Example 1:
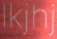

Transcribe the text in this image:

lkjhj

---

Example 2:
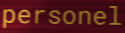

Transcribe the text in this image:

personel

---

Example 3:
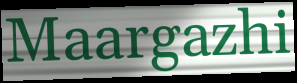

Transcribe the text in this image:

Maargazhi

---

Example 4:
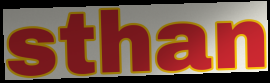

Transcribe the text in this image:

sthan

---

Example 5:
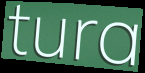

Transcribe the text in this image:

tura